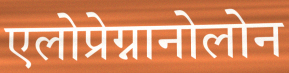
एलोप्रेग्नानोलोन